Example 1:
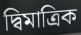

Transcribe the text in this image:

দ্বিমাত্ৰিক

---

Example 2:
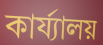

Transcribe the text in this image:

কাৰ্য্যালয়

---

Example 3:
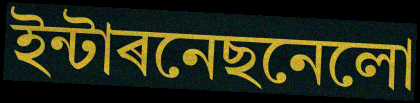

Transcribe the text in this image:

ইন্টাৰনেছনেলো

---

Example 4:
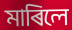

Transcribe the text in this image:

মাৰিলে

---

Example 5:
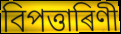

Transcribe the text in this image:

বিপত্তাৰিণী